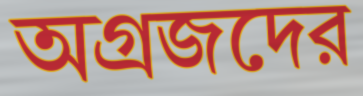
অগ্রজদের